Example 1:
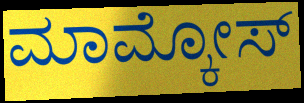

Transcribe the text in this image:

ಮಾಮ್ಕೋಸ್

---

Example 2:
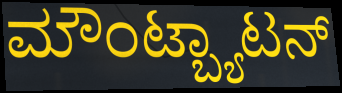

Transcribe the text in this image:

ಮೌಂಟ್ಬ್ಯಾಟನ್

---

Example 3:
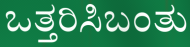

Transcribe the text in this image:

ಒತ್ತರಿಸಿಬಂತು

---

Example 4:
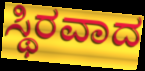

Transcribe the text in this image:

ಸ್ಥಿರವಾದ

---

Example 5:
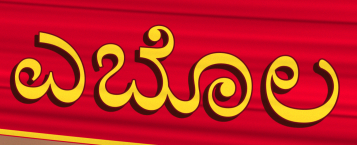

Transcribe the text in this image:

ಎಬೊಲ